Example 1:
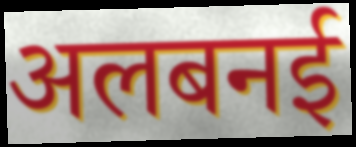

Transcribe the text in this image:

अलबनई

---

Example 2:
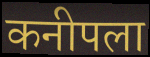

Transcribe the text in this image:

कनीपला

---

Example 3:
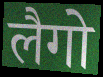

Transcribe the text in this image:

लैगो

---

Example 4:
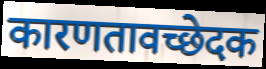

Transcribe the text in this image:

कारणतावच्छेदक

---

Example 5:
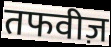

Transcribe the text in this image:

तफवीज़